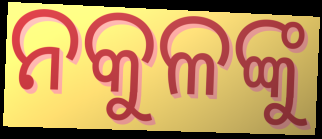
ନକୁଳଙ୍କୁ